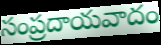
సంప్రదాయవాదం